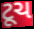
ટૂચ